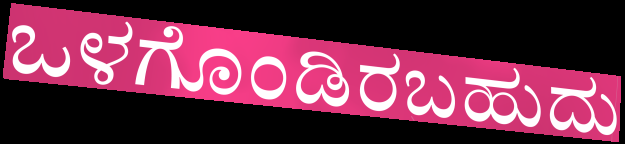
ಒಳಗೊಂಡಿರಬಹುದು